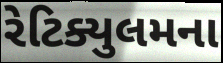
રેટિક્યુલમના